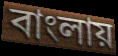
বাংলায়